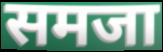
समजा